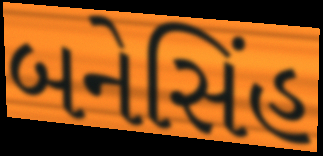
બનેસિંહ